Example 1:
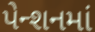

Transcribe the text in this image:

પેન્શનમાં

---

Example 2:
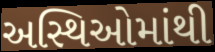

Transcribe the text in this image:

અસ્થિઓમાંથી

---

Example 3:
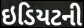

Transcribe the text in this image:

ઇડિયટની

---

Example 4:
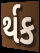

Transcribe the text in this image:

ર્થક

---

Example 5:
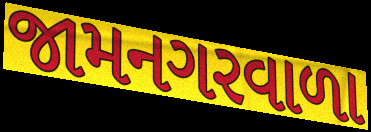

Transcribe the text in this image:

જામનગરવાળા